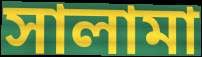
সালামা